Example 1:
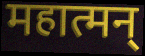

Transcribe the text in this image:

महात्मन्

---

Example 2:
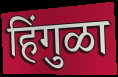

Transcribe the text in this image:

हिंगुळा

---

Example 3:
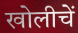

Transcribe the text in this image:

खोलीचें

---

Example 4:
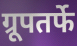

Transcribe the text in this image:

ग्रूपतर्फे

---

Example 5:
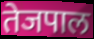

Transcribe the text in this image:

तेजपाल